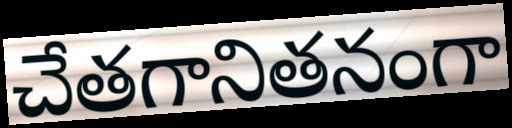
చేతగానితనంగా